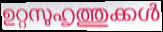
ഉറ്റസുഹൃത്തുക്കൾ